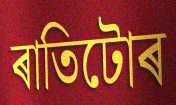
ৰাতিটোৰ